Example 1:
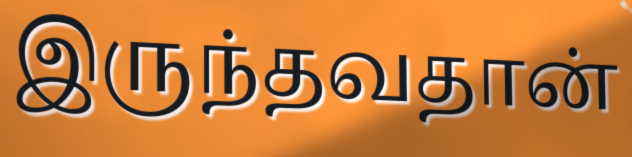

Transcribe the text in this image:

இருந்தவதான்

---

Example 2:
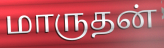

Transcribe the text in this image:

மாருதன்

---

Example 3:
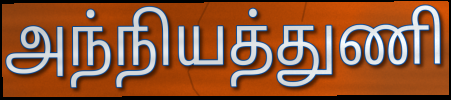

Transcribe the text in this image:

அந்நியத்துணி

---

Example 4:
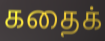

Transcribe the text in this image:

கதைக்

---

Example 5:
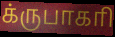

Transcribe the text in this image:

க்ருபாகரி